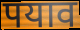
पयाव